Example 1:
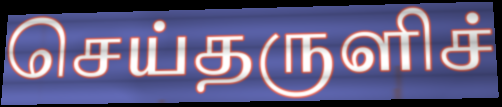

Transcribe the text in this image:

செய்தருளிச்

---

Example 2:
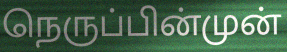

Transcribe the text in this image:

நெருப்பின்முன்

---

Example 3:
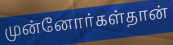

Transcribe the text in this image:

முன்னோர்கள்தான்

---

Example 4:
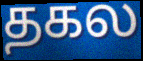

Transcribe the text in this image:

தகல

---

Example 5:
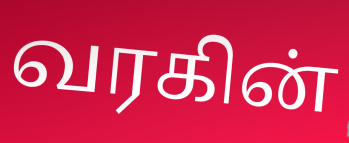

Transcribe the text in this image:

வரகின்